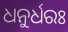
ଧନୁର୍ଧରଃ